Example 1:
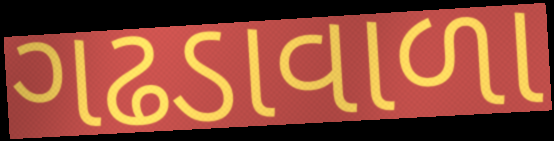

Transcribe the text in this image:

ગઢડાવાળા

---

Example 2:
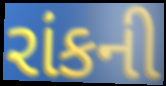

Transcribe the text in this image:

રાંકની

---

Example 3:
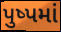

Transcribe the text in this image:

પુષ્પમાં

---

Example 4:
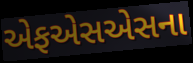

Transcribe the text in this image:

એફએસએસના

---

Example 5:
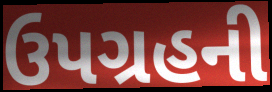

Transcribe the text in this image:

ઉપગ્રહની